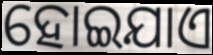
ହୋଇଯାଏ